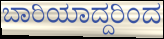
ಬಾರಿಯಾದ್ದರಿಂದ